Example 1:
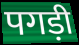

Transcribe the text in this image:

पगड़ी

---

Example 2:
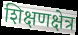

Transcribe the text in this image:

शिक्षणक्षेत्र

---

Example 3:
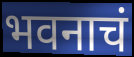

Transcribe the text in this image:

भवनाचं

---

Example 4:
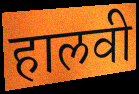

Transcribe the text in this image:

हालवी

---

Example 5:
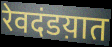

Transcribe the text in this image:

रेवदंडय़ात